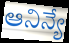
ఆనిన్యే